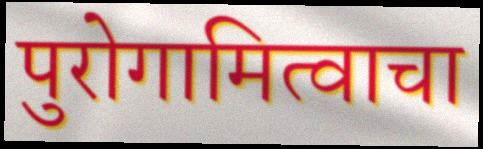
पुरोगामित्वाचा